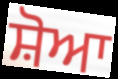
ਸ਼ੋਆ